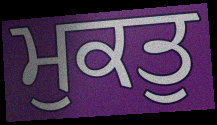
ਮੁਕਤੁ